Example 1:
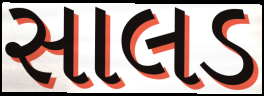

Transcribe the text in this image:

સાલડ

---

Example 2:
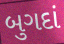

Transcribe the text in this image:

બુગદાં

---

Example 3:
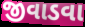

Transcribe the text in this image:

જીવાડવા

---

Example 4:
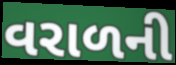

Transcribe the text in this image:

વરાળની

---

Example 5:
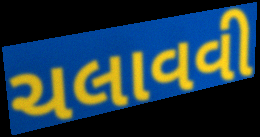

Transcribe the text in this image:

ચલાવવી